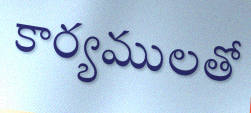
కార్యములతో